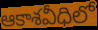
ఆకాశవీధిలో